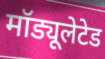
मॉड्यूलेटेड